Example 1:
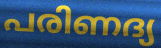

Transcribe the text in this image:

പരിണദ്യ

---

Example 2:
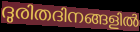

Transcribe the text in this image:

ദുരിതദിനങ്ങളിൽ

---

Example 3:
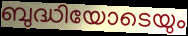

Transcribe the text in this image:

ബുദ്ധിയോടെയും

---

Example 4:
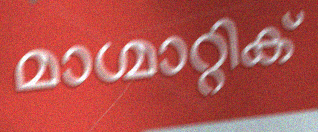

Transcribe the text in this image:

മാഗ്മാറ്റിക്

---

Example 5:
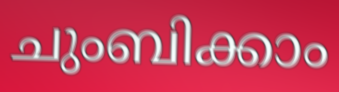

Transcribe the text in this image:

ചുംബിക്കാം